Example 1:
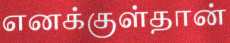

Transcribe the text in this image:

எனக்குள்தான்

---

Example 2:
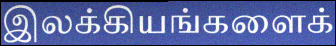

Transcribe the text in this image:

இலக்கியங்களைக்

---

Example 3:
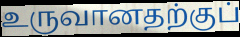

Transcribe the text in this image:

உருவானதற்குப்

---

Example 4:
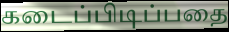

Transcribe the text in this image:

கடைப்பிடிப்பதை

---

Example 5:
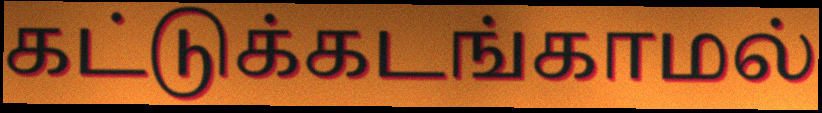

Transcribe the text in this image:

கட்டுக்கடங்காமல்